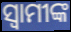
ସ୍ୱାମୀଙ୍କ